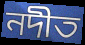
নদীত